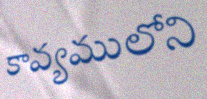
కావ్యములోని